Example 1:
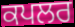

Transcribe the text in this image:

ਕਪਲਰ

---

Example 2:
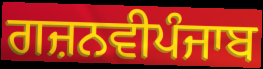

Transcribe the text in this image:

ਗਜ਼ਨਵੀਪੰਜਾਬ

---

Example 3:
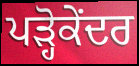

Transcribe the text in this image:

ਪੜ੍ਹੋਕੇਂਦਰ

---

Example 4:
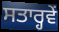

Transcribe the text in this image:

ਸਤਾਰ੍ਹਵੇਂ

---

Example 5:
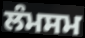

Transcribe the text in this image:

ਲੰਮਸਮ